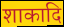
शाकादि